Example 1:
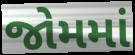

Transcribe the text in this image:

જોમમાં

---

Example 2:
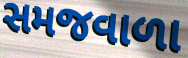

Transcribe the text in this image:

સમજવાળા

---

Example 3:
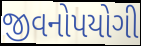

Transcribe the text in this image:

જીવનોપયોગી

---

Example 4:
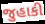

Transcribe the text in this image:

જુહાકી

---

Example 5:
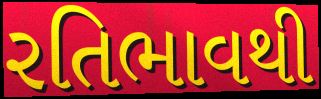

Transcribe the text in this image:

રતિભાવથી